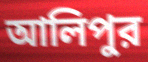
আলিপুর